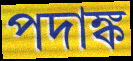
পদাঙ্ক